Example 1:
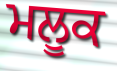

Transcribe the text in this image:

ਮਲੂਕ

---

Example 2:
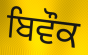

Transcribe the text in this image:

ਬਿਵੌਕ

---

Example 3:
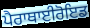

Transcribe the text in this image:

ਪੈਰਾਥਾਈਰੋਇਡ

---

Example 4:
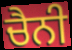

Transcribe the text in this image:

ਚੈਨੀ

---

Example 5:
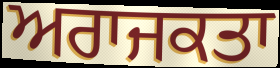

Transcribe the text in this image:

ਅਰਾਜਕਤਾ